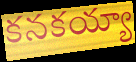
కనకయ్యా